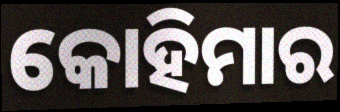
କୋହିମାର